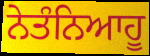
ਨੇਤੰਨਿਆਹੂ